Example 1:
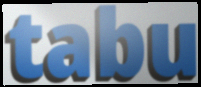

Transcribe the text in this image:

tabu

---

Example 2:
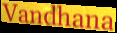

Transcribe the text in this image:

Vandhana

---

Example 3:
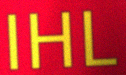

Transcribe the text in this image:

IHL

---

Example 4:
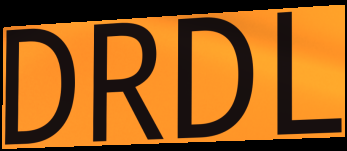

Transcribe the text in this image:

DRDL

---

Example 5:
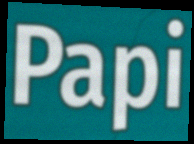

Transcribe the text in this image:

Papi